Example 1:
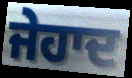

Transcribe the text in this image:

ਜੇਹਾਦ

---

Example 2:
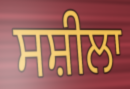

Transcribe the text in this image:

ਸਸ਼ੀਲਾ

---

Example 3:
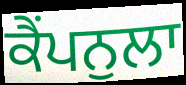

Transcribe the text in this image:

ਕੈਂਪਨੁਲਾ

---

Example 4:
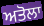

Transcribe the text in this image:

ਅਤੋਲਾ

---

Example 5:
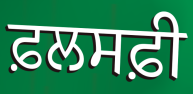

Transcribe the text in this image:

ਫ਼ਲਸਫ਼ੀ